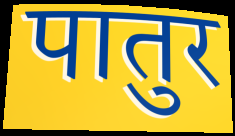
पातुर